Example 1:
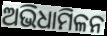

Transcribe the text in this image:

ଅଭିଧାମିଳନ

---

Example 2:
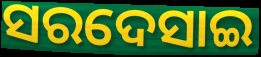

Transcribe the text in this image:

ସରଦେସାଇ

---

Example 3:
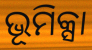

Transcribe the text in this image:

ଭୂମିକ୍ସା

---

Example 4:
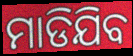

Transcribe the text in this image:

ମାଡିଯିବ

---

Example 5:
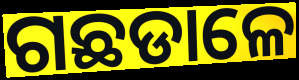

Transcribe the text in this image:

ଗଛଡାଳେ